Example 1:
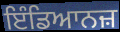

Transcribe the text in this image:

ਇੰਡਿਆਨਜ਼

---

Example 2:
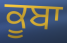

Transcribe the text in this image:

ਕੂਬਾ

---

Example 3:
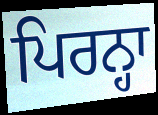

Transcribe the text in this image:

ਪਿਰਨ੍ਹਾ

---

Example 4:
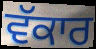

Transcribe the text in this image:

ਵੱਕਾਰ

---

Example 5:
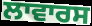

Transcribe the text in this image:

ਲਾਵਾਰਸ